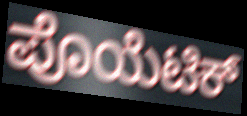
ಪೊಯೆಟಿಕ್